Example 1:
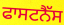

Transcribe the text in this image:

ਫਾਸਟਨੈੱਸ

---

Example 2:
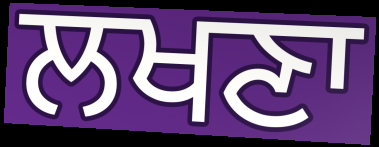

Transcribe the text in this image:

ਲਖਣਾ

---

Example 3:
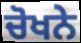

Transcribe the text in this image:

ਚੋਖਨੇ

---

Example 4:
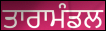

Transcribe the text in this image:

ਤਾਰਾਮੰਡਲ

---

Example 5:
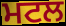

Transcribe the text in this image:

ਮਟਲ